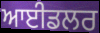
ਆਈਡਲਰ